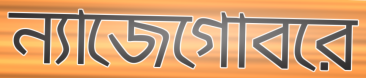
ন্যাজেগোবরে